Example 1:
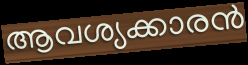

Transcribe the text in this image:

ആവശ്യക്കാരൻ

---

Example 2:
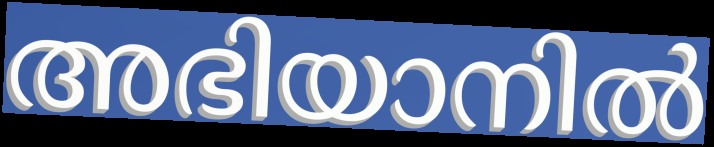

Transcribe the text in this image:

അഭിയാനിൽ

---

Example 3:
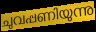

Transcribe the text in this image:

ചുവപ്പണിയുന്നു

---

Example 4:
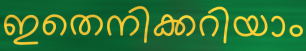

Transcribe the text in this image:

ഇതെനിക്കറിയാം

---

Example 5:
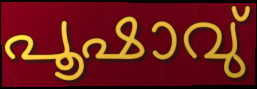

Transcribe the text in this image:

പൂഷാവു്